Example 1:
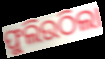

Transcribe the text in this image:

ଫୁଲିଉଠିଲା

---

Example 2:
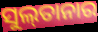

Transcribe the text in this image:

ସୁଲ୍‌ତାନାର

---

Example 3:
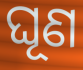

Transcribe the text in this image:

ଘୂଣ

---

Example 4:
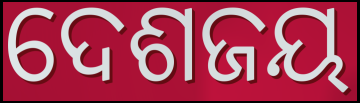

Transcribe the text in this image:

ଦେଶଜୟ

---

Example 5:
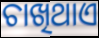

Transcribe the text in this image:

ଚାଖିଥାଏ